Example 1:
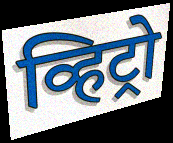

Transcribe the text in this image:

व्हिट्रो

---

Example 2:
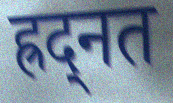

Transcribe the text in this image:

ह्रद्नत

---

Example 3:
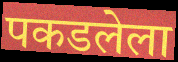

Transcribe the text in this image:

पकडलेला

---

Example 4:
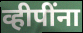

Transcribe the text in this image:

व्हीपींना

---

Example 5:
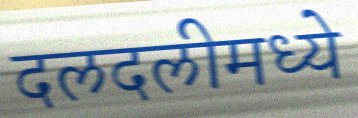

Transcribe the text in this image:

दलदलीमध्ये